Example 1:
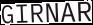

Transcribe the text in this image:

GIRNAR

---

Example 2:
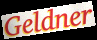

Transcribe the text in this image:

Geldner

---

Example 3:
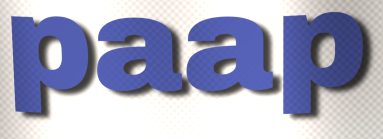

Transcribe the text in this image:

paap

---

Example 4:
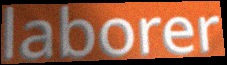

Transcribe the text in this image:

laborer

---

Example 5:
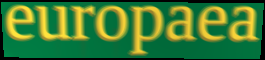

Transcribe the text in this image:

europaea